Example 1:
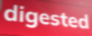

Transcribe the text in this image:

digested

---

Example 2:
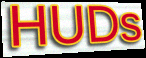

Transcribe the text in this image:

HUDs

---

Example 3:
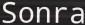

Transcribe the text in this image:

Sonra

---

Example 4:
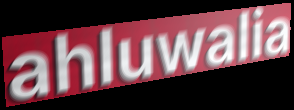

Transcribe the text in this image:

ahluwalia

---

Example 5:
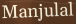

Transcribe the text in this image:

Manjulal